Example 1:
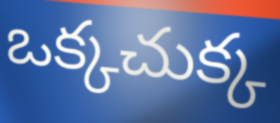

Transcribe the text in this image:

ఒక్కచుక్క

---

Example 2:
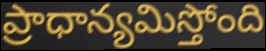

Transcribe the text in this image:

ప్రాధాన్యమిస్తోంది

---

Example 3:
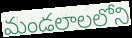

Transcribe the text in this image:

మండలాలలోని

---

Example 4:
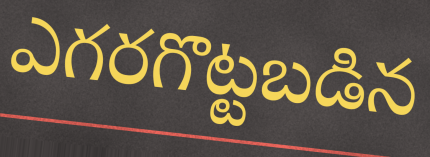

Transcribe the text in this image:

ఎగరగొట్టబడిన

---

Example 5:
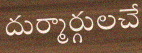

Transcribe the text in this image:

దుర్మార్గులచే